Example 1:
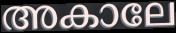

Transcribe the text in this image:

അകാലേ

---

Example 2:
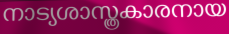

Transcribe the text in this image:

നാട്യശാസ്ത്രകാരനായ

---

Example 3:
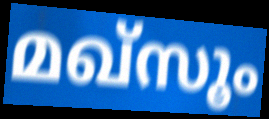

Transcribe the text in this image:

മഖ്സൂം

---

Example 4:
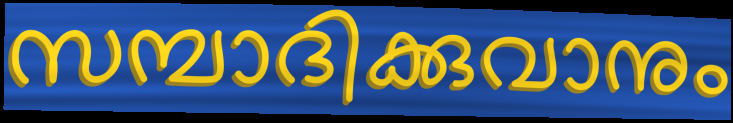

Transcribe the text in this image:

സമ്പാദിക്കുവാനും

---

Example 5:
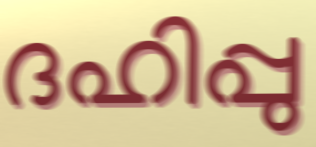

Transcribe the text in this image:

ദഹിപ്പു